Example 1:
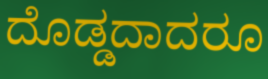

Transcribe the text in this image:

ದೊಡ್ಡದಾದರೂ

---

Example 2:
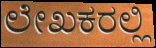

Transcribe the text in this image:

ಲೇಖಕರಲ್ಲಿ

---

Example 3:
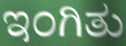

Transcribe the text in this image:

ಇಂಗಿತು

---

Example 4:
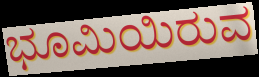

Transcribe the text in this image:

ಭೂಮಿಯಿರುವ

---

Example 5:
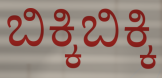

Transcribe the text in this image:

ಬಿಕ್ಕಿಬಿಕ್ಕಿ